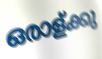
ഒരാള്ക്കു